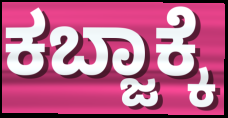
ಕಬ್ಜಾಕ್ಕೆ